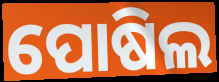
ପୋଷିଲ